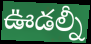
ఊడల్నీ